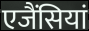
एजैंसियां